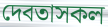
দেবতাসকল